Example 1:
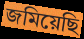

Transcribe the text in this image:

জমিয়েছি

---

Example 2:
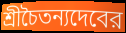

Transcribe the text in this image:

শ্রীচৈতন্যদেবের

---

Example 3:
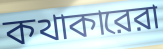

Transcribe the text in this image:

কথাকারেরা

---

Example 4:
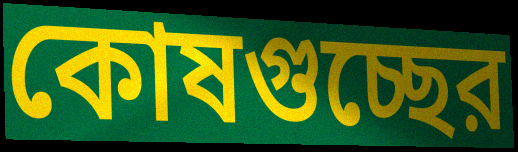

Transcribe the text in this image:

কোষগুচ্ছের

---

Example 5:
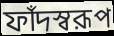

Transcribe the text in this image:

ফাঁদস্বরূপ